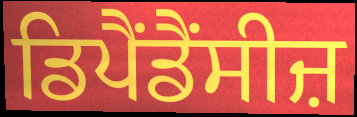
ਡਿਪੈਂਡੈਂਸੀਜ਼